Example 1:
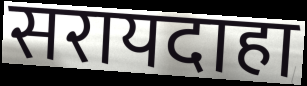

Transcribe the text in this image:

सरायदाहा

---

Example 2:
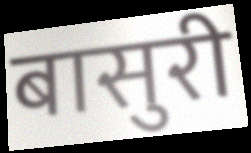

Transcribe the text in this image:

बासुरी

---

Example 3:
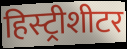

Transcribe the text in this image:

हिस्‍ट्रीशीटर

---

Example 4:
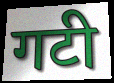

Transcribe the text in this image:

गटी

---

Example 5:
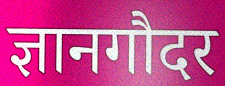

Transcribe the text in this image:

ज्ञानगौदर